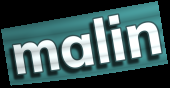
malin